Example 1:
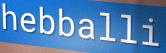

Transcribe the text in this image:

hebballi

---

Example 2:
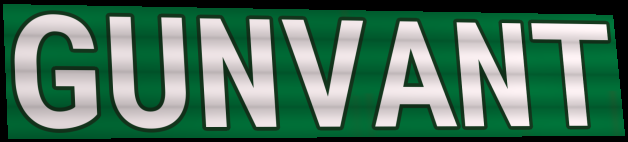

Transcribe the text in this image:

GUNVANT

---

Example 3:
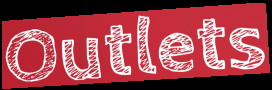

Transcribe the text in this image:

Outlets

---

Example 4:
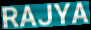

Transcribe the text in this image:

RAJYA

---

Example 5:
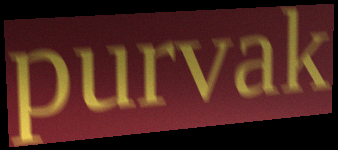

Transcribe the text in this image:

purvak